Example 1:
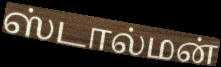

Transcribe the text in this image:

ஸ்டால்மன்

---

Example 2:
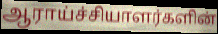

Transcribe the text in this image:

ஆராய்ச்சியாளர்களின்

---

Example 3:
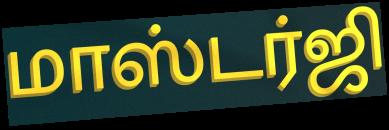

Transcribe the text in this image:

மாஸ்டர்ஜி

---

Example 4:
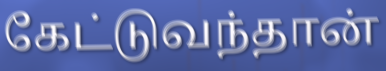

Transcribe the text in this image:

கேட்டுவந்தான்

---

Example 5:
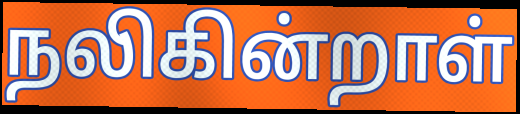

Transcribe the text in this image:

நலிகின்றாள்